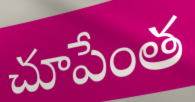
చూపేంత